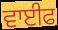
ਵਾਈਫ